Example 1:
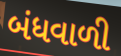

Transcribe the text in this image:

બંધવાળી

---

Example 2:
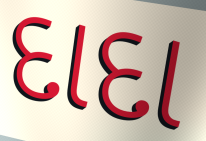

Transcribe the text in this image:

દાદા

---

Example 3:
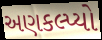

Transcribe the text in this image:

અણકલ્પ્યો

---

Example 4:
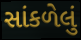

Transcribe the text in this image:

સાંકળેલું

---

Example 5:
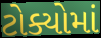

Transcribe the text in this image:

ટોક્યોમાં